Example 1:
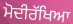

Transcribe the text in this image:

ਮੋਦੀਰੱਖਿਆ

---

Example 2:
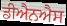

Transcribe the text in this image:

ਡੀਐਨਐਸ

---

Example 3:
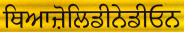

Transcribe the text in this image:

ਥਿਆਜ਼ੋਲਿਡੀਨੇਡੀਓਨ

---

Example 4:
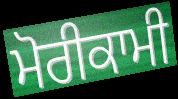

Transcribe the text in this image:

ਮੋਰੀਕਾਮੀ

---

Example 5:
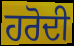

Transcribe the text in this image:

ਹਰੋਦੀ